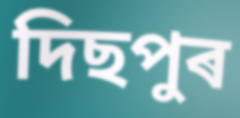
দিছপুৰ